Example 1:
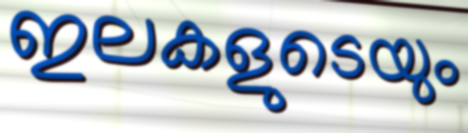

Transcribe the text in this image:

ഇലകളുടെയും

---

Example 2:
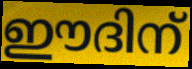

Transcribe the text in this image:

ഈദിന്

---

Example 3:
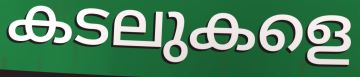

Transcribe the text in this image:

കടലുകളെ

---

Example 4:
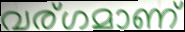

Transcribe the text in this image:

വര്ഗമാണ്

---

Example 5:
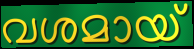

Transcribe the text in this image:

വശമായ്